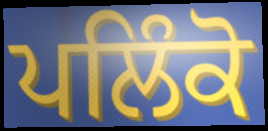
ਪਲਿੰਕੋ